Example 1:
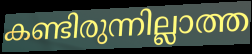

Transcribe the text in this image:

കണ്ടിരുന്നില്ലാത്ത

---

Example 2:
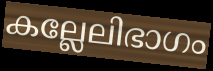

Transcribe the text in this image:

കല്ലേലിഭാഗം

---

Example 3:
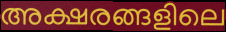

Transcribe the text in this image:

അക്ഷരങ്ങളിലെ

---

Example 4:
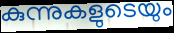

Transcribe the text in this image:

കുന്നുകളുടെയും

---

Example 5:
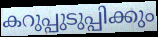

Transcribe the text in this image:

കറുപ്പുടുപ്പിക്കും